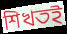
শিখতই